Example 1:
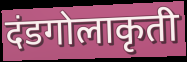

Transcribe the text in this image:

दंडगोलाकृती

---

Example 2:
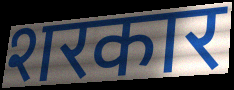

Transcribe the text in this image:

शरकार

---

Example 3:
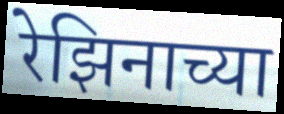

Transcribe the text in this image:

रेझिनाच्या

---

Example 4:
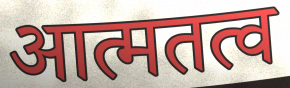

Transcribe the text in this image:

आत्मतत्व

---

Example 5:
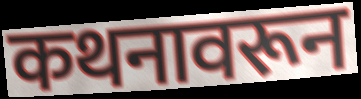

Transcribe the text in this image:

कथनावरून